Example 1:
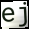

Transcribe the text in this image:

ej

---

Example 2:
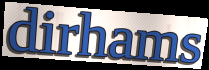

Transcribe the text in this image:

dirhams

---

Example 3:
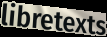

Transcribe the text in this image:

libretexts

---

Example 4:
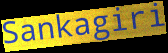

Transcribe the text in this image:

Sankagiri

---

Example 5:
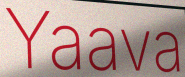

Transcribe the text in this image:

Yaava